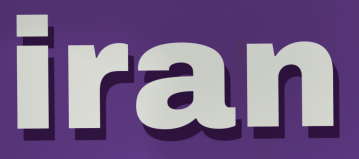
iran